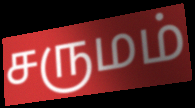
சருமம்